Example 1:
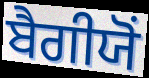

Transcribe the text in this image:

ਬੈਗੀਯੋਂ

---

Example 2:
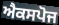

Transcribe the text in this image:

ਐਕਸਪੋਜ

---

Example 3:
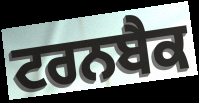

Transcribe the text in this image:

ਟਰਨਬੈਕ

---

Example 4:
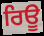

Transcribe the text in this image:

ਰਿਊ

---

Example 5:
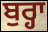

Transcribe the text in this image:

ਬੁਰ੍ਹਾ